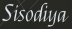
Sisodiya